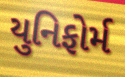
યુનિફોર્મ